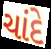
ચાંદે